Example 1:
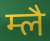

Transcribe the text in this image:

म्लै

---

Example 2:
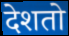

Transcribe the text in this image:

देशतो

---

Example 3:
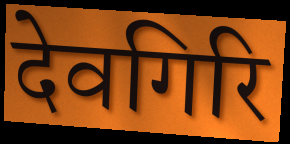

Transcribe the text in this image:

देवगिरि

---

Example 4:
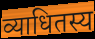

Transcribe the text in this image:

व्याधितस्य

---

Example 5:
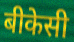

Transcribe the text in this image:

बीकेसी